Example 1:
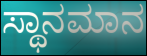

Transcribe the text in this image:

ಸ್ಥಾನಮಾನ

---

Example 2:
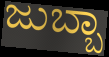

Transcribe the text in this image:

ಜುಬ್ಬಾ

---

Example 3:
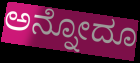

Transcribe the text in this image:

ಅನ್ನೋದೂ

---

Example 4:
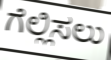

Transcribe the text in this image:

ಗೆಲ್ಲಿಸಲು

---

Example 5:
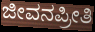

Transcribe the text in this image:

ಜೀವನಪ್ರೀತಿ